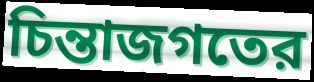
চিন্তাজগতের